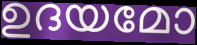
ഉദയമോ